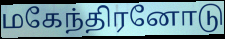
மகேந்திரனோடு